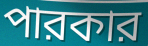
পারকার